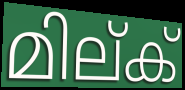
മില്ക്